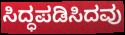
ಸಿದ್ಧಪಡಿಸಿದವು